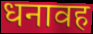
धनावह